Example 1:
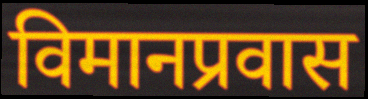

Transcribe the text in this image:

विमानप्रवास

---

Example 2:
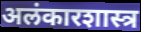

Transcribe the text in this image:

अलंकारशास्त्र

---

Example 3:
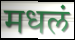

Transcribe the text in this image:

मधलं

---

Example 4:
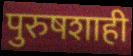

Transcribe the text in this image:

पुरुषशाही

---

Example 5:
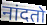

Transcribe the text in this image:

नांदतो